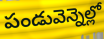
పండువెన్నెల్లో